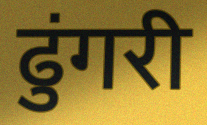
ढुंगरी